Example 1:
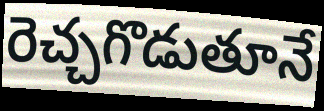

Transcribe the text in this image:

రెచ్చగొడుతూనే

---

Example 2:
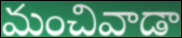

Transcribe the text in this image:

మంచివాడా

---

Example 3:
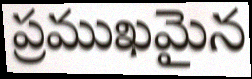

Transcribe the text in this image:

ప్రముఖమైన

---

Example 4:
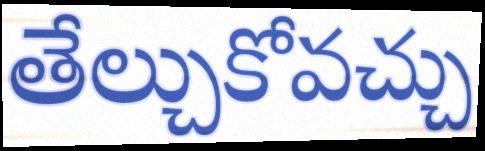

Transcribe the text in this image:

తేల్చుకోవచ్చు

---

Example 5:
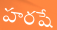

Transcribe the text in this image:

హరషే